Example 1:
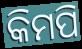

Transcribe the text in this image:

କିମପି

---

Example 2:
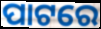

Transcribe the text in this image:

ପାଟରେ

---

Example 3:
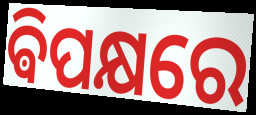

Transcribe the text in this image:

ଵିପକ୍ଷରେ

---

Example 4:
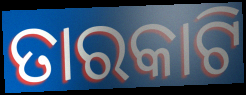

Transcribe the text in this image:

ତାରକାଟି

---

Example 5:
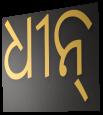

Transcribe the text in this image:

ଧୀନ୍